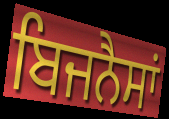
ਬਿਜਨੈਸਾਂ